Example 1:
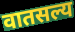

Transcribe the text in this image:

वातसल्य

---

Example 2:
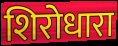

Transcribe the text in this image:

शिरोधारा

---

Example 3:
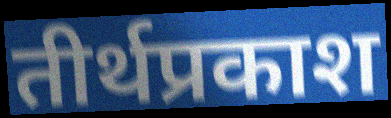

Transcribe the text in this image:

तीर्थप्रकाश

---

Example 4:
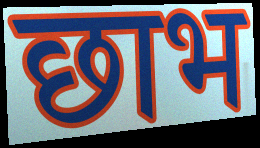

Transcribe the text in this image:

छाभ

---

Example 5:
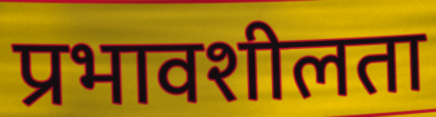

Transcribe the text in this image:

प्रभावशीलता